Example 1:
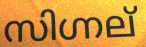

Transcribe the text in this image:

സിഗ്നല്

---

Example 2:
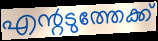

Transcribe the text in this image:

എന്റടുത്തേക്ക്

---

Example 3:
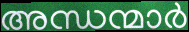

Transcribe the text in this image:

അന്ധന്മാർ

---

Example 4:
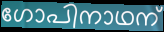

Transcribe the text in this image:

ഗോപിനാഥന്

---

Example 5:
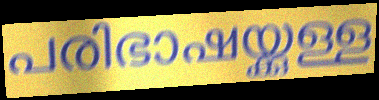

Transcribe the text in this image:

പരിഭാഷയ്ക്കുള്ള